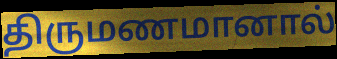
திருமணமானால்